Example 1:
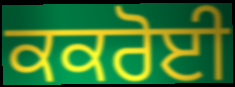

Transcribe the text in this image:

ਕਕਰੋਈ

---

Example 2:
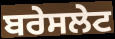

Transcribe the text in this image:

ਬਰੇਸਲੇਟ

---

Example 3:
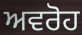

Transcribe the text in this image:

ਅਵਰੋਹ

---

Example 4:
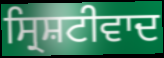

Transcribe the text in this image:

ਸ੍ਰਿਸ਼ਟੀਵਾਦ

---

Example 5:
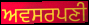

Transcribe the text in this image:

ਅਵਸਰਪਣੀ